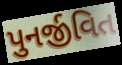
પુનર્જીવિત